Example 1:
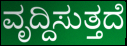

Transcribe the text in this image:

ವೃದ್ದಿಸುತ್ತದೆ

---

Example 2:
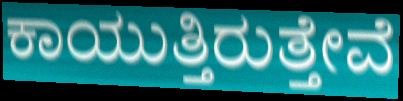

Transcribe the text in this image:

ಕಾಯುತ್ತಿರುತ್ತೇವೆ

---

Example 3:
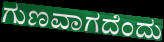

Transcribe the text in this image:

ಗುಣವಾಗದೆಂದು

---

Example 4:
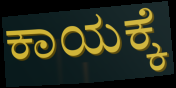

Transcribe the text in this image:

ಕಾಯಕ್ಕೆ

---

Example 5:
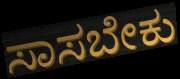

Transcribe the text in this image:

ಸಾಸಬೇಕು